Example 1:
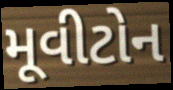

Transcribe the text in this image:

મૂવીટોન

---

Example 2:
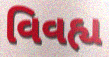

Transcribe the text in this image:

વિવહ્ય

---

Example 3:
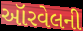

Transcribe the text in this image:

ઑરવેલની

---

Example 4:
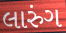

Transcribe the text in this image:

લારુંગ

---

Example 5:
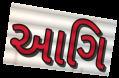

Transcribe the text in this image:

આગિ